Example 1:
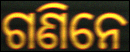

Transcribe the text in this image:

ଗଣିନେ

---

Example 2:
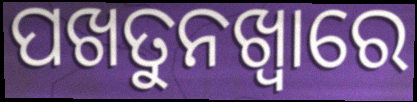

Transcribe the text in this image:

ପଖତୁନଖ୍ୱାରେ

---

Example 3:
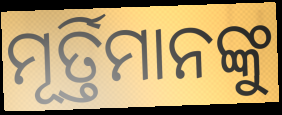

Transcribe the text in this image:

ମୂର୍ତ୍ତିମାନଙ୍କୁ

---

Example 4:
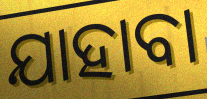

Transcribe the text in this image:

ଯାହାବା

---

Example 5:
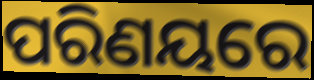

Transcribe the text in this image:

ପରିଣୟରେ